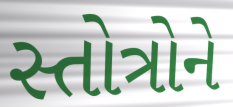
સ્તોત્રોને